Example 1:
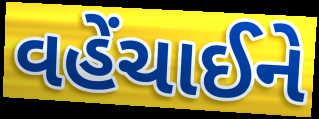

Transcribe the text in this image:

વહેંચાઈને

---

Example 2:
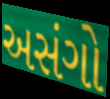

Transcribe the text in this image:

અસંગો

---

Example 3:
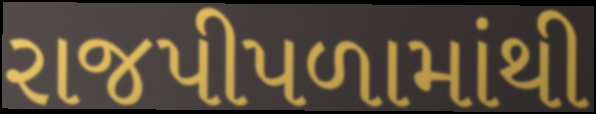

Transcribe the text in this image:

રાજપીપળામાંથી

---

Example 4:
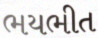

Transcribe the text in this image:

ભયભીત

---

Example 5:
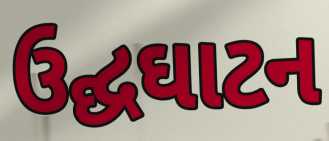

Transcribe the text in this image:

ઉદ્ઘઘાટન